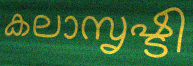
കലാസൃഷ്ടി